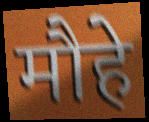
मौहे